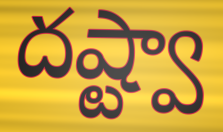
దష్ట్వా